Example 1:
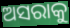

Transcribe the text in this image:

ଅସରାକୁ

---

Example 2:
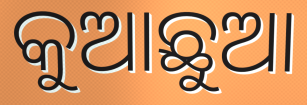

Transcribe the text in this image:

କୁଆଛୁଆ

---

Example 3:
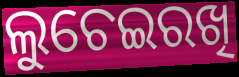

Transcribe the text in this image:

ଲୁଚେଇରଖି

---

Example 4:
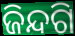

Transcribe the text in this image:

ଜିନ୍ଦଗି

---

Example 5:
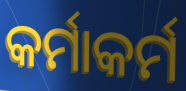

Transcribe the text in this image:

କର୍ମାକର୍ମ